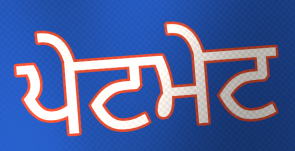
ਪੇਟਮੇਟ